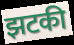
झटकी